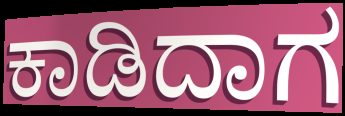
ಕಾಡಿದಾಗ